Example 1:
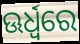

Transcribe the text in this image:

ଊର୍ଧ୍ୱରେ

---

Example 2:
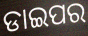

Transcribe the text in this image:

ଡାଇପର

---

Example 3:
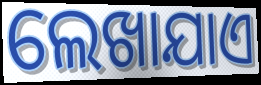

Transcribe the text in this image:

ଲେଖାଯାଏ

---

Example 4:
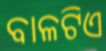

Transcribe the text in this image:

ବାଳଟିଏ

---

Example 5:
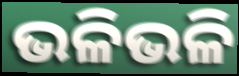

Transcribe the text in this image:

ଭଳିଭଳି